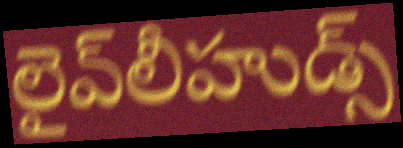
లైవ్‌లీహుడ్స్